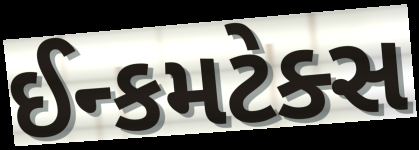
ઈન્કમટેક્સ